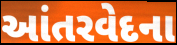
આંતરવેદના